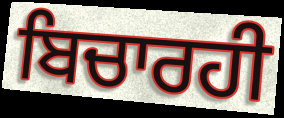
ਬਿਚਾਰਹੀ